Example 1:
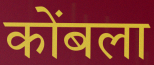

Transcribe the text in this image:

कोंबला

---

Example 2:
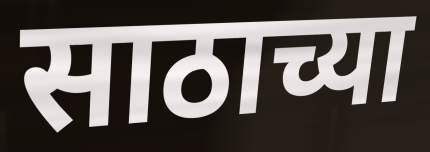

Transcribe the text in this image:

साठाच्या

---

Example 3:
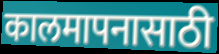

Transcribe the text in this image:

कालमापनासाठी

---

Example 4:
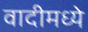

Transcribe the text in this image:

वादीमध्ये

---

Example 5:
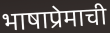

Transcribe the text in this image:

भाषाप्रेमाची